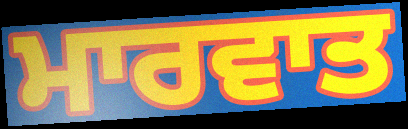
ਮਾਰਵਾਤ